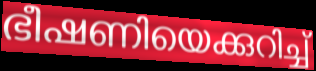
ഭീഷണിയെക്കുറിച്ച്